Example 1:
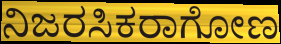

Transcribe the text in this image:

ನಿಜರಸಿಕರಾಗೋಣ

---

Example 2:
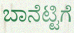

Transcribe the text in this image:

ಬಾನೆಟ್ಟಿಗೆ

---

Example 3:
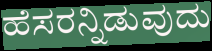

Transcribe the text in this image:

ಹೆಸರನ್ನಿಡುವುದು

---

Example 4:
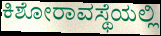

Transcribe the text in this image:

ಕಿಶೋರಾವಸ್ಥೆಯಲ್ಲಿ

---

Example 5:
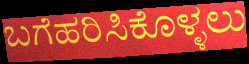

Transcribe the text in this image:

ಬಗೆಹರಿಸಿಕೊಳ್ಳಲು